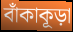
বাঁকাকূড়া